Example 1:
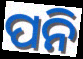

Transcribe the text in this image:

ପନି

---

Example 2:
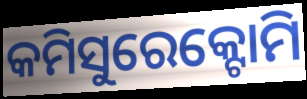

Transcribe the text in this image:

କମିସୁରେକ୍ଟୋମି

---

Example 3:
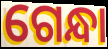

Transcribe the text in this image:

ଗେନ୍ଧା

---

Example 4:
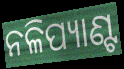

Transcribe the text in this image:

ନଳିପ୍ୟାଣ୍ଟ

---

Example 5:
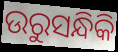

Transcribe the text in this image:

ଉରୁସନ୍ଧିକି